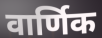
वार्णिक